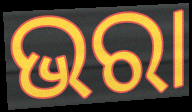
ଭରା